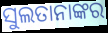
ସୁଲତାନାଙ୍କର